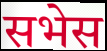
सभेस